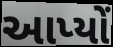
આપ્યોં